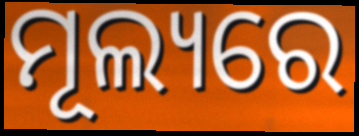
ମୂଲ୍ୟରେ